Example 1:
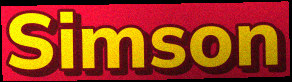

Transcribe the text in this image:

Simson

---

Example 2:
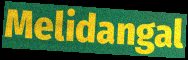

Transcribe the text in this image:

Melidangal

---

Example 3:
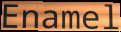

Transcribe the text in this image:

Enamel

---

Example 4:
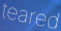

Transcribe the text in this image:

teared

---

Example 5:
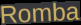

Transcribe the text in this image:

Romba